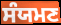
ਸੰਯਮਣ